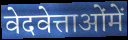
वेदवेत्ताओंमें